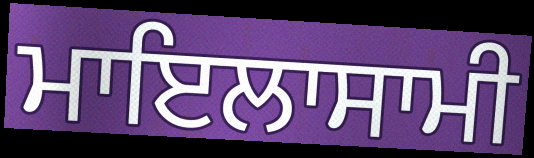
ਮਾਇਲਾਸਾਮੀ